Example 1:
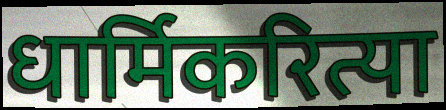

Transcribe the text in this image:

धार्मिकरित्या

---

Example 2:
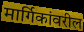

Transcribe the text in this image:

मार्गिकांवरील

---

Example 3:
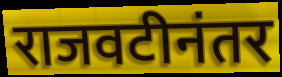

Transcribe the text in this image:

राजवटीनंतर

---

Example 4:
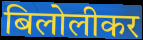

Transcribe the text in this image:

बिलोलीकर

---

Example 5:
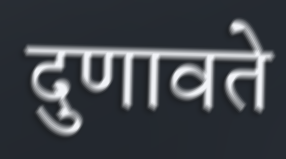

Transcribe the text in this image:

दुणावते